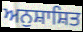
ਅਨੁਸ਼ਾਸ਼ਿਤ